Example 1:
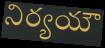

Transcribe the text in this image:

నిర్యయౌ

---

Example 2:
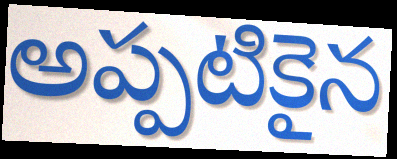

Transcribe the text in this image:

అప్పటికైన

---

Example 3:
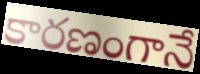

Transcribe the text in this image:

కారణంగానే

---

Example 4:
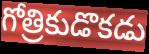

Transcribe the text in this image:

గోత్రికుడొకడు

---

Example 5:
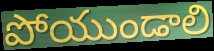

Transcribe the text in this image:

పోయుండాలి